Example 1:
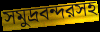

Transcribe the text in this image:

সমুদ্রবন্দরসহ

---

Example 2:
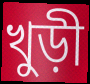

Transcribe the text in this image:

খুড়ী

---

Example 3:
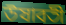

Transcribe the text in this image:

উষাবতী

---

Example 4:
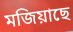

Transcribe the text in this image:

মজিয়াছে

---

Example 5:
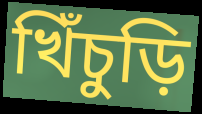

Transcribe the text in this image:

খিঁচুড়ি